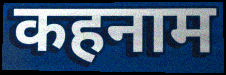
कहनाम